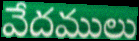
వేదములు